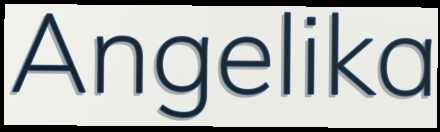
Angelika